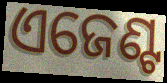
ଏଜେଣ୍ଟ